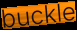
buckle